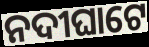
ନଦୀଘାଟେ